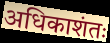
अधिकाशंतः